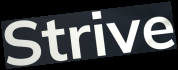
Strive